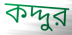
কদ্দুর